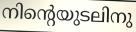
നിന്റെയുടലിനു